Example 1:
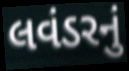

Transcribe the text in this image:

લવંડરનું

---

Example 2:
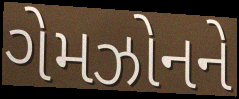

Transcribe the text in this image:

ગેમઝોનને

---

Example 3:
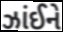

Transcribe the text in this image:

ઝાંઈને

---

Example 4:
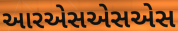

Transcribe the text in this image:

આરએસએસએસ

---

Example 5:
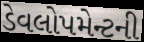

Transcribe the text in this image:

ડેવલોપમેન્ટની